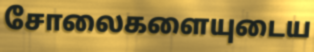
சோலைகளையுடைய